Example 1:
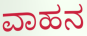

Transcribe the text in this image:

ವಾಹನ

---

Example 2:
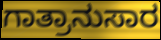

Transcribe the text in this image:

ಗಾತ್ರಾನುಸಾರ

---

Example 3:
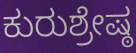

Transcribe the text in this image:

ಕುರುಶ್ರೇಷ್ಠ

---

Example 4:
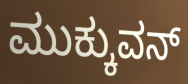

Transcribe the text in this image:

ಮುಕ್ಕುವನ್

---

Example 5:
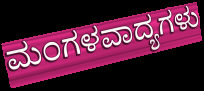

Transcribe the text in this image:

ಮಂಗಳವಾದ್ಯಗಳು